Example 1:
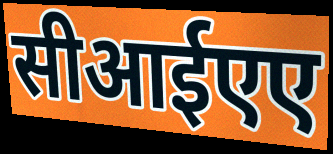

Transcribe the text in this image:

सीआईएए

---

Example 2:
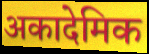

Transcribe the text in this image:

अकादेमिक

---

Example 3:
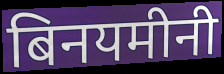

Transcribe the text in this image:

बिनयमीनी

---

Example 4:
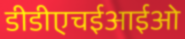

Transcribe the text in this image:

डीडीएचईआईओ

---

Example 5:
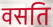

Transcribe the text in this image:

वसति